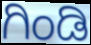
ಗಿಂಡಿ